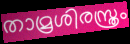
താമ്രശിരസ്ത്രം